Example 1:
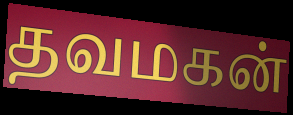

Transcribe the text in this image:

தவமகன்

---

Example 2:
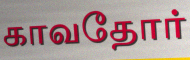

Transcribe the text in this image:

காவதோர்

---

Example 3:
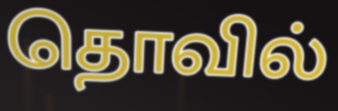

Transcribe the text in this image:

தொவில்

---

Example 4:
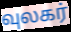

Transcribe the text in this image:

வுலகர்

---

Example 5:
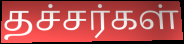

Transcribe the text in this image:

தச்சர்கள்